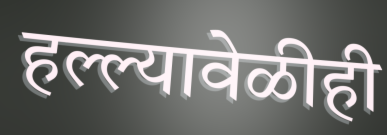
हल्ल्यावेळीही